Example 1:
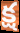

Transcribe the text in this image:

క్ష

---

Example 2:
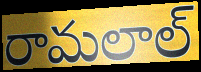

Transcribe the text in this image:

రామలాల్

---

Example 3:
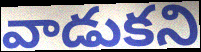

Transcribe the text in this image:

వాడుకని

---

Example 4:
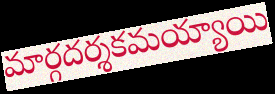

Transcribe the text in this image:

మార్గదర్శకమయ్యాయి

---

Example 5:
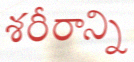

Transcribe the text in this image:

శరీరాన్ని